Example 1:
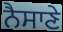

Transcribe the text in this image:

ਨੈਸਾਣੇ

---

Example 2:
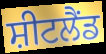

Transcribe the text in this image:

ਸ਼ੀਟਲੈਂਡ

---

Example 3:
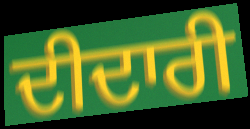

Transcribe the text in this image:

ਦੀਦਾਰੀ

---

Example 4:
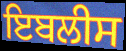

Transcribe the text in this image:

ਇਬਲੀਸ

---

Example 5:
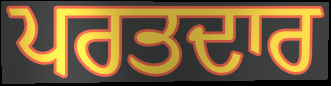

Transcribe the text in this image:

ਪਰਤਦਾਰ